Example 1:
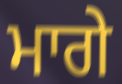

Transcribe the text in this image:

ਮਾਗੇ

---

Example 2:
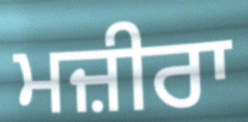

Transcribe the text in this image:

ਮਜ਼ੀਰਾ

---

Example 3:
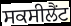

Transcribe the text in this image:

ਸਕਸੀਲੈਂਟ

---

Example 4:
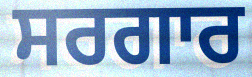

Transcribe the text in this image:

ਸਰਗਾਰ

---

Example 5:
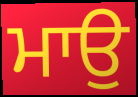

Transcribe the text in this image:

ਮਾਉ